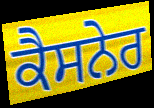
ਕੈਸਨੇਰ